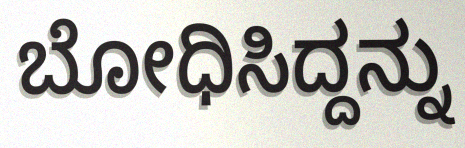
ಬೋಧಿಸಿದ್ದನ್ನು